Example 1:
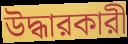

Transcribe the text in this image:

উদ্ধারকারী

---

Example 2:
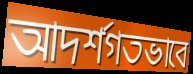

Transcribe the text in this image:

আদর্শগতভাবে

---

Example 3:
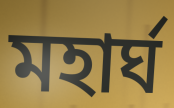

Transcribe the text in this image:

মহার্ঘ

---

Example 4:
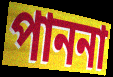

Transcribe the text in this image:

পাননা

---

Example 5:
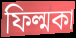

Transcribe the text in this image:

ফিল্মকা